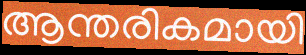
ആന്തരികമായി